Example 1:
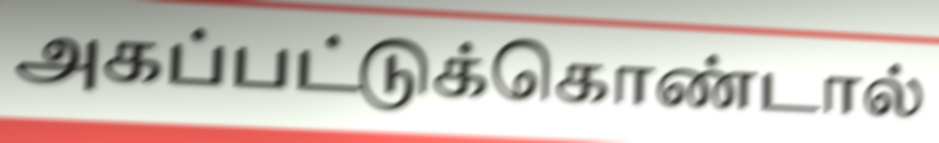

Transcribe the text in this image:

அகப்பட்டுக்கொண்டால்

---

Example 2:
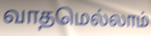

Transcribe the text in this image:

வாதமெல்லாம்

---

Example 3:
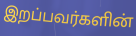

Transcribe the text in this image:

இறப்பவர்களின்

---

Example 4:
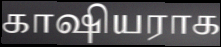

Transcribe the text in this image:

காஷியராக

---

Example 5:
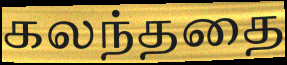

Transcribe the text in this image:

கலந்ததை